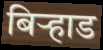
बिऱ्हाड